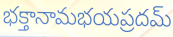
భక్తానామభయప్రదమ్